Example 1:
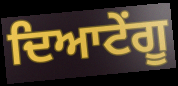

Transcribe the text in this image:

ਦਿਆਟੇਂਗੂ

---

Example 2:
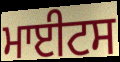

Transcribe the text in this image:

ਮਾਈਟਸ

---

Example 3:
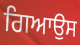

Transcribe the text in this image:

ਗਿਆਉਸ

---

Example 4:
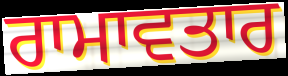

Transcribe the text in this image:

ਰਾਮਾਵਤਾਰ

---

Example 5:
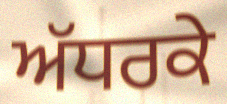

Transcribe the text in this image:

ਅੱਧਰਕੇ